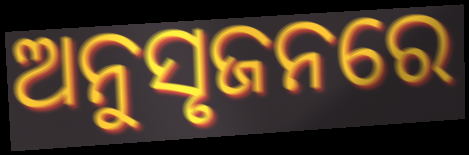
ଅନୁସୃଜନରେ